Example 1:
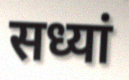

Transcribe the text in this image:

सध्यां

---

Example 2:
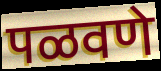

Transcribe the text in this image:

पळवणे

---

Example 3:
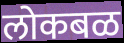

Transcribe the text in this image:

लोकबळ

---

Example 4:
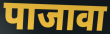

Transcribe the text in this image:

पाजावा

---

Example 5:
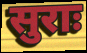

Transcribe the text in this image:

सुराः